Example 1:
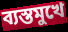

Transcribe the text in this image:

ব্যস্তমুখে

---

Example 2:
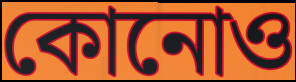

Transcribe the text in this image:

কোনোও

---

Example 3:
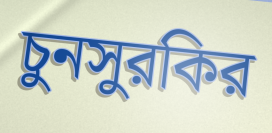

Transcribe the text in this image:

চুনসুরকির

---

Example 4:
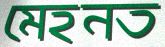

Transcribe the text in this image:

মেহনত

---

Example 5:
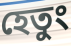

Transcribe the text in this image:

হেতুং